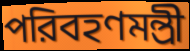
পরিবহণমন্ত্রী